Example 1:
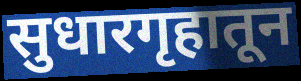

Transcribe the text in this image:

सुधारगृहातून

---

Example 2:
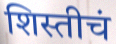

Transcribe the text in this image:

शिस्तीचं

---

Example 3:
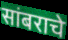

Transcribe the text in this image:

सांबराचे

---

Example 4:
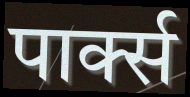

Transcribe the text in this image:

पार्क्‍स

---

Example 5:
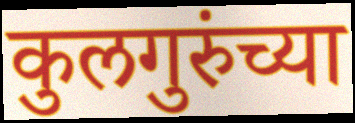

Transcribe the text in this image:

कुलगुरुंच्या